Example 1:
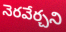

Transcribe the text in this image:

నెరవేర్చని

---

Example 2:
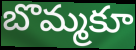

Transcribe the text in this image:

బొమ్మకూ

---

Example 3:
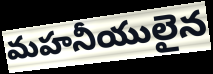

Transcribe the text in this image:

మహనీయులైన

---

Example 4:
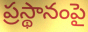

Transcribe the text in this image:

ప్రస్థానంపై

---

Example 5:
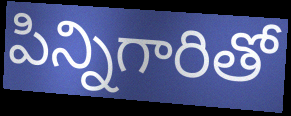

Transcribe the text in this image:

పిన్నిగారితో